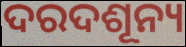
ଦରଦଶୂନ୍ୟ